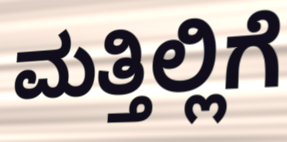
ಮತ್ತಿಲ್ಲಿಗೆ